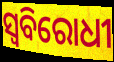
ସ୍ୱବିରୋଧୀ